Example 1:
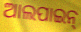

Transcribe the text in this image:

ଆଲପାଇନ୍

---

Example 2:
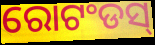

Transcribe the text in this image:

ରୋଟଂଡସ୍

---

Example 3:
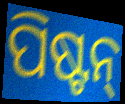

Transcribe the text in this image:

ପିଷ୍ଟନ୍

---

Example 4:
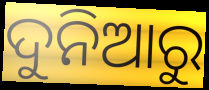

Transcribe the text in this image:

ଦୁନିଆରୁ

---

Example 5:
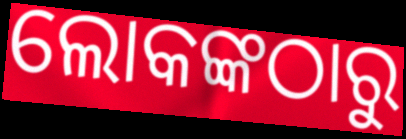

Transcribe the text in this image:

ଲୋକଙ୍କଠାରୁ